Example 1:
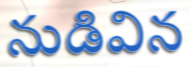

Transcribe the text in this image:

నుడివిన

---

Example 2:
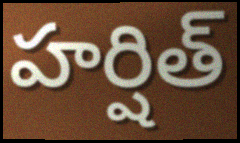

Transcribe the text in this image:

హర్షిత్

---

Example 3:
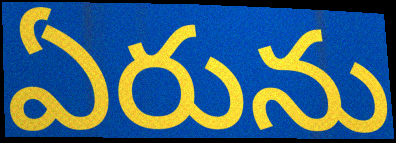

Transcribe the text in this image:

ఏరును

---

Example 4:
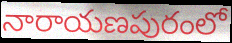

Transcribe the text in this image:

నారాయణపురంలో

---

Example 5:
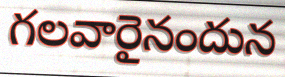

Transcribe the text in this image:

గలవారైనందున